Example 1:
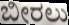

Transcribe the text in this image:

ಬೀರಲು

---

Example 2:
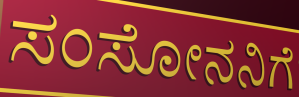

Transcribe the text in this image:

ಸಂಸೋನನಿಗೆ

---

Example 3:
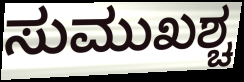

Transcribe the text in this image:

ಸುಮುಖಶ್ಚ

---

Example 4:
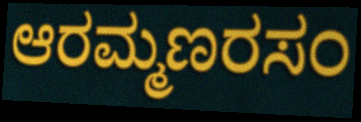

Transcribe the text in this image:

ಆರಮ್ಮಣರಸಂ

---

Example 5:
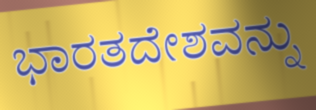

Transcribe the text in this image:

ಭಾರತದೇಶವನ್ನು